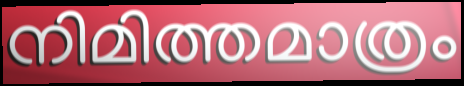
നിമിത്തമാത്രം